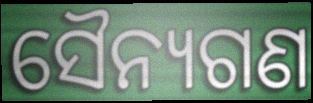
ସୈନ୍ୟଗଣ